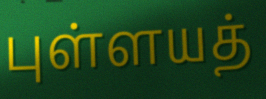
புள்ளயத்